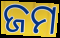
ଜମ